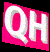
QH